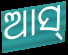
ଆସ୍